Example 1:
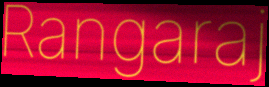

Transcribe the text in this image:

Rangaraj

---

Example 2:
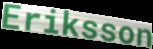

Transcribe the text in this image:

Eriksson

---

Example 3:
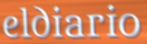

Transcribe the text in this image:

eldiario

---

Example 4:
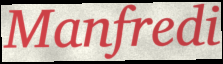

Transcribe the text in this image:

Manfredi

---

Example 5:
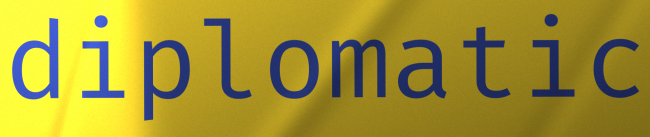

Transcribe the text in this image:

diplomatic